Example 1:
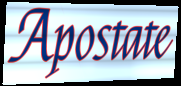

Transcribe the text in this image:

Apostate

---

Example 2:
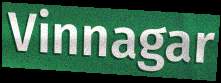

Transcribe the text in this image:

Vinnagar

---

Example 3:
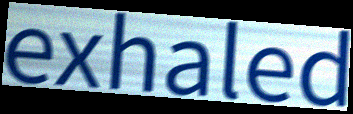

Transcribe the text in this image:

exhaled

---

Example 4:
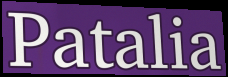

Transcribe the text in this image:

Patalia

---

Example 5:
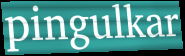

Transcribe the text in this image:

pingulkar